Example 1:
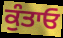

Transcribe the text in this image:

ਕੁੰਤਾਓ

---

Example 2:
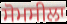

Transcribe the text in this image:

ਸੋਮਸੀਲਾ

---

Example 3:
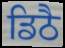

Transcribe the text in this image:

ਡਿਠੈ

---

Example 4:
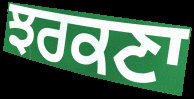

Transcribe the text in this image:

ਝਰਕਣਾ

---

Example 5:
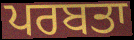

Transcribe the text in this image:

ਪਰਬਤਾ